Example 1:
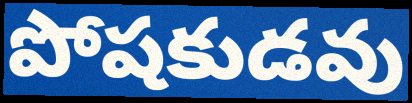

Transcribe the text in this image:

పోషకుడవు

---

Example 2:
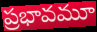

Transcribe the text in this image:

ప్రభావమూ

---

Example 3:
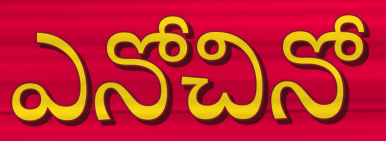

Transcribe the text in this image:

ఎనోచినో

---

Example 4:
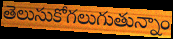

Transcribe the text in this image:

తెలుసుకోగలుగుతున్నాం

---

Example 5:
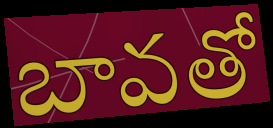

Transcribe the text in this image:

బావతో